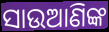
ସାଉଆଣିଙ୍କ